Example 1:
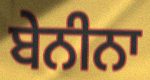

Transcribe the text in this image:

ਬੇਨੀਨਾ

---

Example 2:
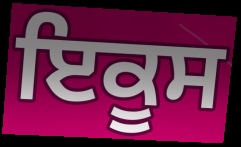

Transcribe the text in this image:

ਇਕੂਸ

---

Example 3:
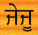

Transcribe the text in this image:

ਜੇਜੂ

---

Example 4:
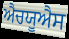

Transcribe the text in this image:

ਐਚਯੂਐਸ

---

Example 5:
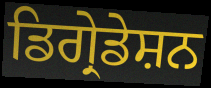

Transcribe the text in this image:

ਡਿਗ੍ਰੇਡੇਸ਼ਨ